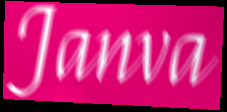
Janva